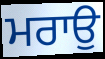
ਮਰਾਉ